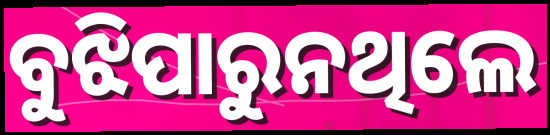
ବୁଝିପାରୁନଥିଲେ